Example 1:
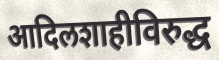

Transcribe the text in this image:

आदिलशाहीविरुद्ध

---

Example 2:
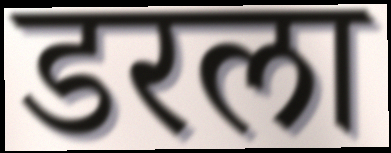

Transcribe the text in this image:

डरला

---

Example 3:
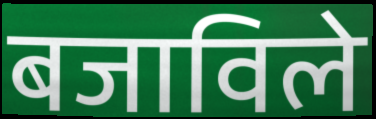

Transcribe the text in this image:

बजाविले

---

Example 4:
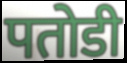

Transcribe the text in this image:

पतोडी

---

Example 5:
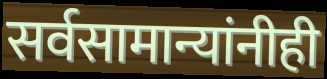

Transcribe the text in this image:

सर्वसामान्यांनीही